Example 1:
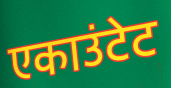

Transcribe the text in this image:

एकाउंटेट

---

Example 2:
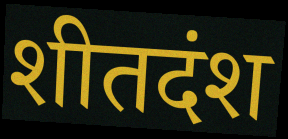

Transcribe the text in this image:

शीतदंश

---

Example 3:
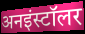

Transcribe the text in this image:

अनइंस्टॉलर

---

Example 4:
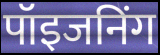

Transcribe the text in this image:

पॉइजनिंग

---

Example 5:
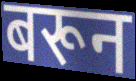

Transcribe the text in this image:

बरून